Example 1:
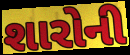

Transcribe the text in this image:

શારોની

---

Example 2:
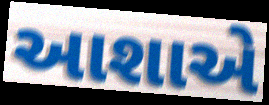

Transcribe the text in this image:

આશાએ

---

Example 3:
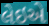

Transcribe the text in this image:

લેઇએ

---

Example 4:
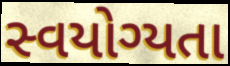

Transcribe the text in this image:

સ્વયોગ્યતા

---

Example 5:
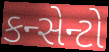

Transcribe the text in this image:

કન્સેન્ટો